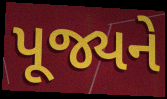
પૂજ્યને